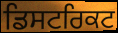
ਡਿਸਟਰਿਕਟ